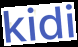
kidi